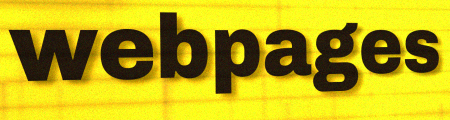
webpages